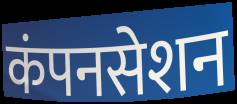
कंपनसेशन